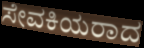
ಸೇವಕಿಯರಾದ